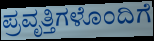
ಪ್ರವೃತ್ತಿಗಳೊಂದಿಗೆ